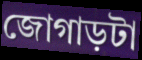
জোগাড়টা